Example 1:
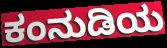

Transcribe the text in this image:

ಕಂನುಡಿಯ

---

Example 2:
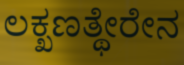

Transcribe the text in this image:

ಲಕ್ಖಣತ್ಥೇರೇನ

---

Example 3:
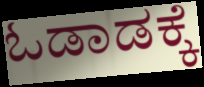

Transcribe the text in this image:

ಓಡಾಡಕ್ಕೆ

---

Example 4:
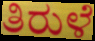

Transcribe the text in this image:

ತಿರುಳೆ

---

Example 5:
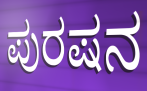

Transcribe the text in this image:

ಪುರಷನ